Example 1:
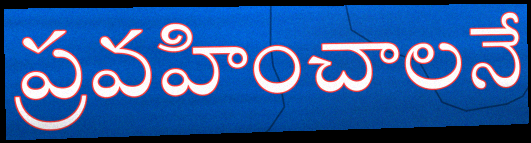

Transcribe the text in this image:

ప్రవహించాలనే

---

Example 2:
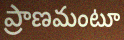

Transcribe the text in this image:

ప్రాణమంటూ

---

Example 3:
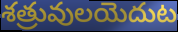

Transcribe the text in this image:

శత్రువులయెదుట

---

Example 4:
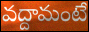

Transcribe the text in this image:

వద్దామంటే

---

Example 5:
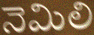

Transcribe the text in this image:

నెమిలి